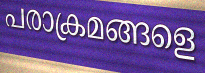
പരാക്രമങ്ങളെ